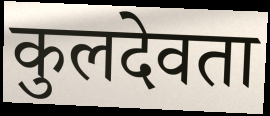
कुलदेवता